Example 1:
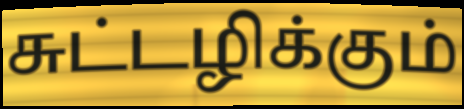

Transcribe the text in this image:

சுட்டழிக்கும்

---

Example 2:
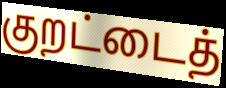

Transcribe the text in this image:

குறட்டைத்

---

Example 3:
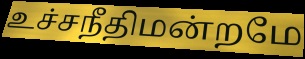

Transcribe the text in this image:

உச்சநீதிமன்றமே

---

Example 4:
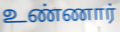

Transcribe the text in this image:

உண்ணார்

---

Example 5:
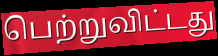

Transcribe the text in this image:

பெற்றுவிட்டது